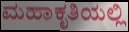
ಮಹಾಕೃತಿಯಲ್ಲಿ